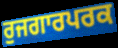
ਰੁਜਗਾਰਪਰਕ